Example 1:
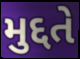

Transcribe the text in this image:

મુદ્દતે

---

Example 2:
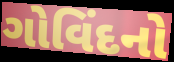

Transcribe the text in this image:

ગોવિંદનો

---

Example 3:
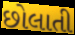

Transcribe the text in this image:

છોલાતી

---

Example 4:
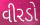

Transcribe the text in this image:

વીરડો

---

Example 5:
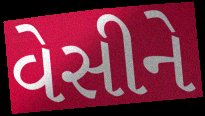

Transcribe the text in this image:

વેસીને